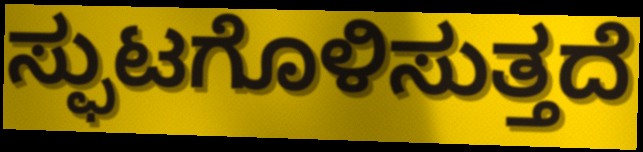
ಸ್ಫುಟಗೊಳಿಸುತ್ತದೆ